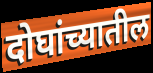
दोघांच्यातील